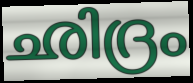
ഛിദ്രം